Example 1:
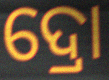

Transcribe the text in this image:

ଦ୍ରୋ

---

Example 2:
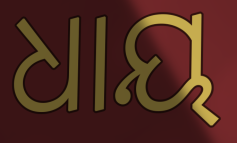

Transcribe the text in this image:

ଧାୟ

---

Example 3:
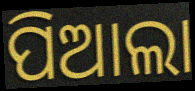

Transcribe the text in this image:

ପିଆଲା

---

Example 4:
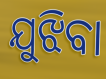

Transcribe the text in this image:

ଯୁଝିବା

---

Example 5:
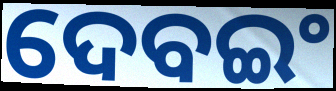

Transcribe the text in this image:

ଦେବଇଂ